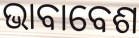
ଭାବାବେଶ